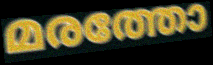
മരത്തോ